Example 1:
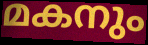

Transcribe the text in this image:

മകനും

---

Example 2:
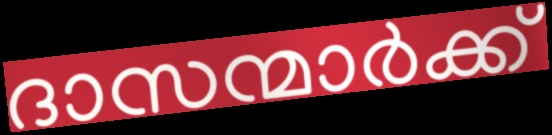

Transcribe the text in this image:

ദാസന്മാർക്ക്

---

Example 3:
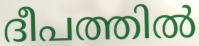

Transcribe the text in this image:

ദീപത്തിൽ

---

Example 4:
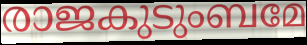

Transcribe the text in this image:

രാജകുടുംബമേ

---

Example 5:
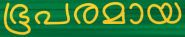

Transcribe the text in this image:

ഭൂപരമായ